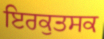
ਇਰਕੁਤਸਕ